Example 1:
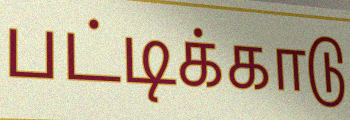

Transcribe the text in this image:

பட்டிக்காடு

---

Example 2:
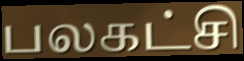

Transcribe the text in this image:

பலகட்சி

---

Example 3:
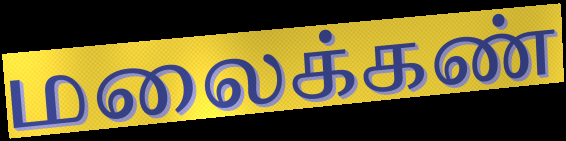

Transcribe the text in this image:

மலைக்கண்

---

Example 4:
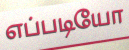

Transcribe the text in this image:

எப்படியோ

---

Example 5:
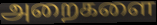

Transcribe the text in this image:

அறைகளை